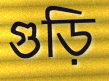
গুড়ি